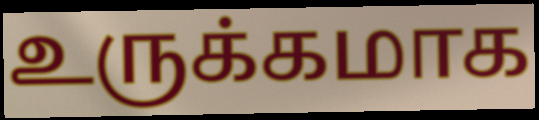
உருக்கமாக